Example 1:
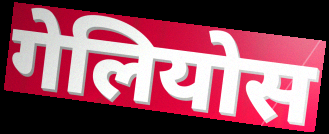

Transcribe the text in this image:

गेलियोस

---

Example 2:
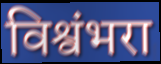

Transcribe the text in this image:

विश्वंभरा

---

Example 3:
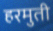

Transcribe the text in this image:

हरमुती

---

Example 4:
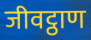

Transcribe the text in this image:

जीवट्ठाण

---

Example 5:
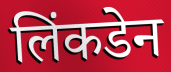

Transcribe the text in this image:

लिंकडेन